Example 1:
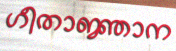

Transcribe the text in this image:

ഗീതാജ്ഞാന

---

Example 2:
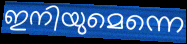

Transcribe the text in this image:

ഇനിയുമെന്നെ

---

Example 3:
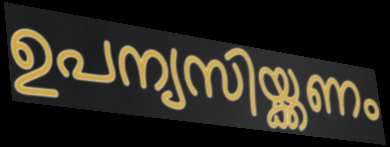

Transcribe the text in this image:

ഉപന്യസിയ്ക്കണം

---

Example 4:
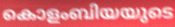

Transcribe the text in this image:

കൊളംബിയയുടെ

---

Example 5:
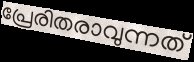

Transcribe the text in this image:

പ്രേരിതരാവുന്നത്